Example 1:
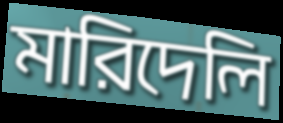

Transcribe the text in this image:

মারিদেলি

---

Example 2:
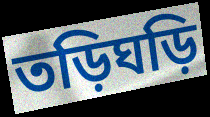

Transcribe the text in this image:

তড়িঘড়ি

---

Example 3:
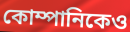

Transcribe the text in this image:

কোম্পানিকেও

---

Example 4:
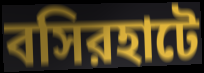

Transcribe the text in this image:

বসিরহাটে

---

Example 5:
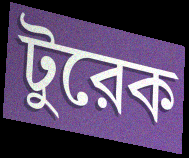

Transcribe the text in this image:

টুরেক